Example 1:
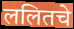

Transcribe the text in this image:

ललितचे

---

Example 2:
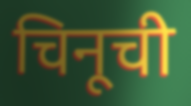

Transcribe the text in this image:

चिनूची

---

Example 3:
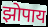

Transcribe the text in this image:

झोपाय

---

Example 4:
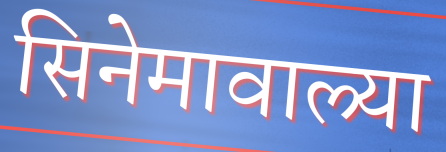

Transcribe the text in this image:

सिनेमावाल्या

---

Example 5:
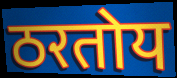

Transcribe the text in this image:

ठरतोय